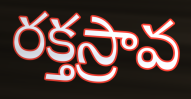
రక్తస్రావ